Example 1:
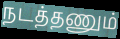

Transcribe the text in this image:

நடத்தணும்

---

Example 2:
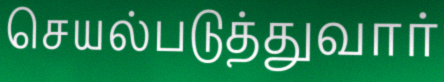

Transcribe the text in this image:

செயல்படுத்துவார்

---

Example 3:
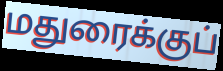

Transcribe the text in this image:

மதுரைக்குப்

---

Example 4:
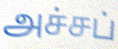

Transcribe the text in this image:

அச்சப்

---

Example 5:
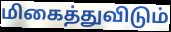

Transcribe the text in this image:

மிகைத்துவிடும்